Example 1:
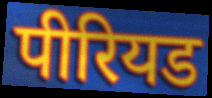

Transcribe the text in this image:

पीरियड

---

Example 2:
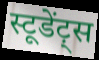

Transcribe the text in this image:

स्टूडेंट़्स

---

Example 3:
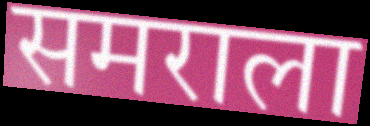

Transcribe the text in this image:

समराला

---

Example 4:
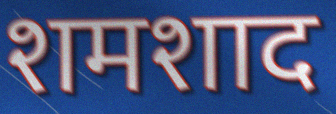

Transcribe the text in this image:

शमशाद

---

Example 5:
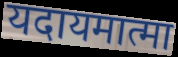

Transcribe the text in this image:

यदायमात्मा